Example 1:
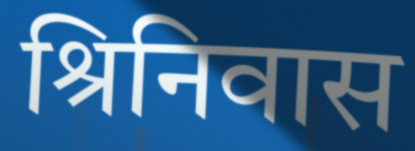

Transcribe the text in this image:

श्रिनिवास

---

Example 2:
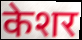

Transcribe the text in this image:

केशर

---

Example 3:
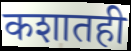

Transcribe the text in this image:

कशातही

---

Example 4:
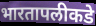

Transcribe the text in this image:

भारतापलीकडे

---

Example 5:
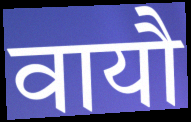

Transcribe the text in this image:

वायौ